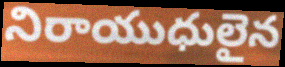
నిరాయుధులైన